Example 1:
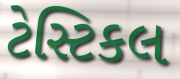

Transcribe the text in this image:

ટેસ્ટિકલ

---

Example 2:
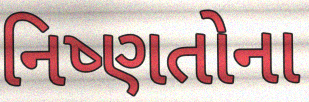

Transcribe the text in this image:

નિષ્ણતોના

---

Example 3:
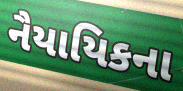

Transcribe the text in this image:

નૈયાયિકના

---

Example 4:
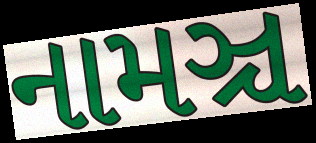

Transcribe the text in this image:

નામઞ્ચ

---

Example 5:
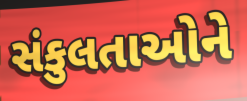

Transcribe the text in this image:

સંકુલતાઓને